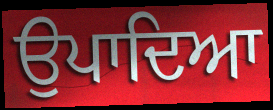
ਉਪਾਦਿਆ